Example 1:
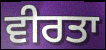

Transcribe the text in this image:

ਵੀਰਤਾ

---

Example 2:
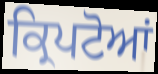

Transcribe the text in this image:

ਕ੍ਰਿਪਟੋਆਂ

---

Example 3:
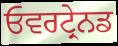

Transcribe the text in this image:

ਓਵਰਟ੍ਰੇਨਡ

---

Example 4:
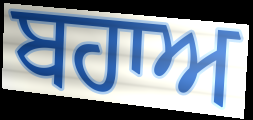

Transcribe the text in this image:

ਬਹਾਅ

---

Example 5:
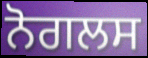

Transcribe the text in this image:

ਨੋਗਲਸ